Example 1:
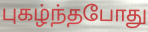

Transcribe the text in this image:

புகழ்ந்தபோது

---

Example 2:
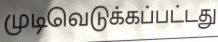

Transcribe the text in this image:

முடிவெடுக்கப்பட்டது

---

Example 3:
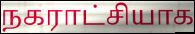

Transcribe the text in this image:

நகராட்சியாக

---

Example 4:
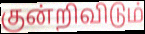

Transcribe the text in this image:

குன்றிவிடும்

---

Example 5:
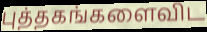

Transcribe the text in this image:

புத்தகங்களைவிட